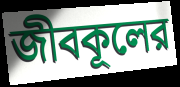
জীবকূলের